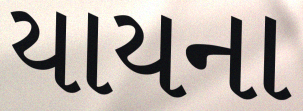
યાયના